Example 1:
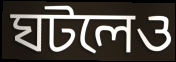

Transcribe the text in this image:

ঘটলেও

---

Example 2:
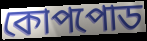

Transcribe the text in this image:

কোপপোড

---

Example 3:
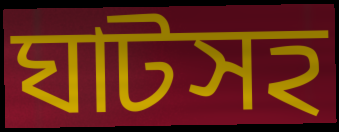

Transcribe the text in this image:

ঘাটসহ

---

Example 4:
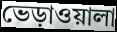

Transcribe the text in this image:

ভেড়াওয়ালা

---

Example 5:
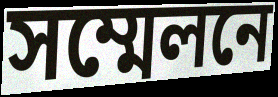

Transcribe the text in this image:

সম্মেলনে